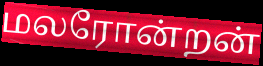
மலரோன்றன்